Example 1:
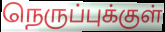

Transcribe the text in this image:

நெருப்புக்குள்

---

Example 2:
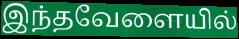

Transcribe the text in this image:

இந்தவேளையில்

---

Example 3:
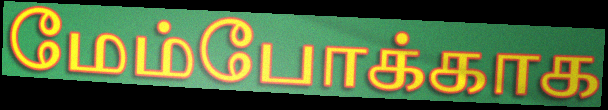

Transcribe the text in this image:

மேம்போக்காக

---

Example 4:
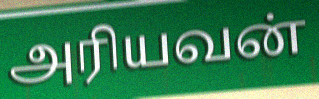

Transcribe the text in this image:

அரியவன்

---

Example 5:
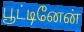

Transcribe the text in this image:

பூட்டினேன்